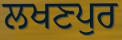
ਲਖਣਪੁਰ